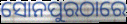
ସୋନପୁରଠାରେ